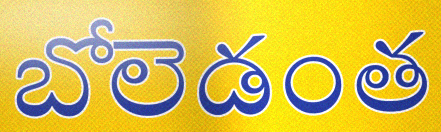
బోలెడంత